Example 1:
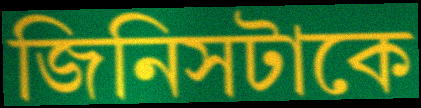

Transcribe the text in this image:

জিনিসটাকে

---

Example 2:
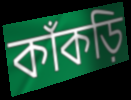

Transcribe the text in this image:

কাঁকড়ি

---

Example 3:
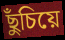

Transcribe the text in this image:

ছুঁচিয়ে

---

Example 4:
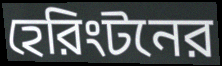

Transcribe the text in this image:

হেরিংটনের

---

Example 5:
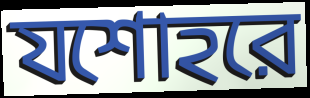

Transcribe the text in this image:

যশোহরে